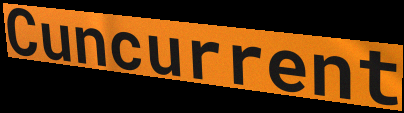
Cuncurrent